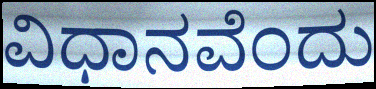
ವಿಧಾನವೆಂದು